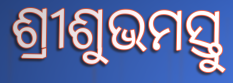
ଶ୍ରୀଶୁଭମସ୍ତୁ